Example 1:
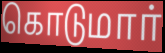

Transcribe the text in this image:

கொடுமார்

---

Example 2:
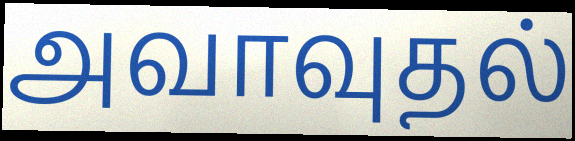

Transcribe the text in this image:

அவாவுதல்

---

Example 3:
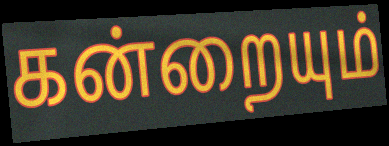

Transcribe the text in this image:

கன்றையும்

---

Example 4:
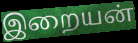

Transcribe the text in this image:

இறையன்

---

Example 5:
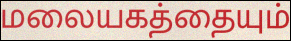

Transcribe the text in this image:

மலையகத்தையும்